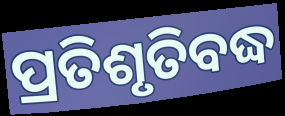
ପ୍ରତିଶୃତିବଦ୍ଧ